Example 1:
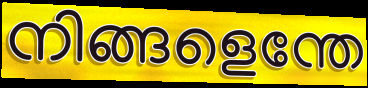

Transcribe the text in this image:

നിങ്ങളെന്തേ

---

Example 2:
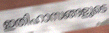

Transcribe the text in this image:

ഇതിഹാസങ്ങളുടെ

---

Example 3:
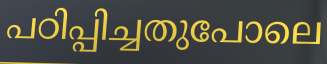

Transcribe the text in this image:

പഠിപ്പിച്ചതുപോലെ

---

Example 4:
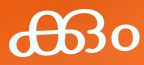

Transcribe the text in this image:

ക്കും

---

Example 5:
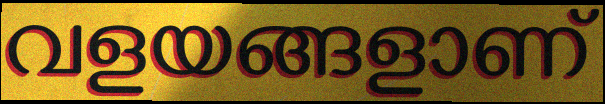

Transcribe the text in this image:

വളയങ്ങളാണ്